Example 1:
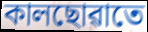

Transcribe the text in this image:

কালছোৱাতে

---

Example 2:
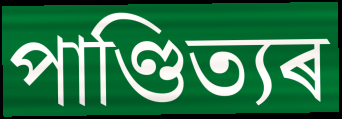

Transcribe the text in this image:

পাণ্ডিত্যৰ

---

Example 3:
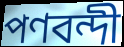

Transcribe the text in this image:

পণবন্দী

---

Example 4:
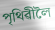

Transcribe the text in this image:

পৃথিৱীলৈ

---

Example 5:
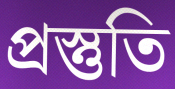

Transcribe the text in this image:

প্ৰস্তুতি